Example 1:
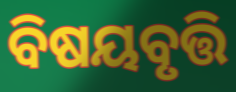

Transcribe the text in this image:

ବିଷୟବୃତ୍ତି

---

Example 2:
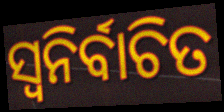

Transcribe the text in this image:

ସ୍ବନିର୍ବାଚିତ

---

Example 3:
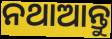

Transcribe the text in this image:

ନଥାଆନ୍ତୁ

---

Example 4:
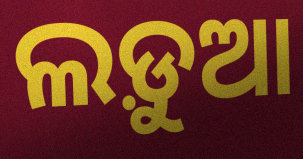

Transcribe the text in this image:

ଲଡ଼ୁଆ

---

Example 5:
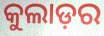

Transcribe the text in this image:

କୁଲାଡ଼ର